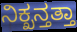
ನಿಕ್ಖನ್ತತ್ತಾ